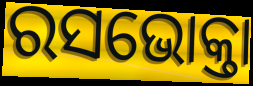
ରସଭୋକ୍ତା